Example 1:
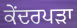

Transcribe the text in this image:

ਕੇਂਦਰਪੜਾ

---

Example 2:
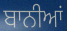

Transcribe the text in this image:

ਬਾਨੀਆਂ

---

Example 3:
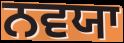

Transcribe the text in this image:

ਨਵਯਾ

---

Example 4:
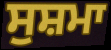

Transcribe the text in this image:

ਸੁਸ਼ਮਾ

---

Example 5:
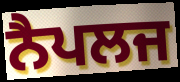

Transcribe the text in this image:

ਨੈਪਲਜ